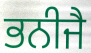
ਭਨੀਜੈ